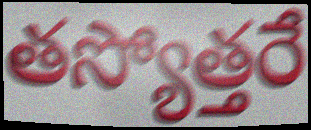
తస్యోత్తరే